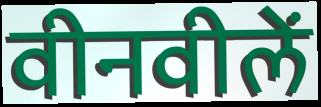
वीनवीलें